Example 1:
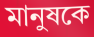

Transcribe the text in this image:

মানুষকে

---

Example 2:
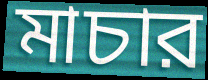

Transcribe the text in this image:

মাচার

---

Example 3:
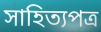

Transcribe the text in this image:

সাহিত্যপত্র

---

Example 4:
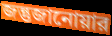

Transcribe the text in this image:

জন্তুজানোয়ার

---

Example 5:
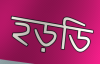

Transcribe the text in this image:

হড়ডি